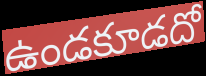
ఉండకూడదో